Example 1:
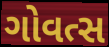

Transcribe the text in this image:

ગોવત્સ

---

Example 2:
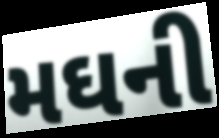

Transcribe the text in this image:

મઘની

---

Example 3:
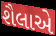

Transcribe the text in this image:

શૈલાએ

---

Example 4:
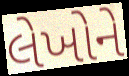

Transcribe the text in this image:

લેખોને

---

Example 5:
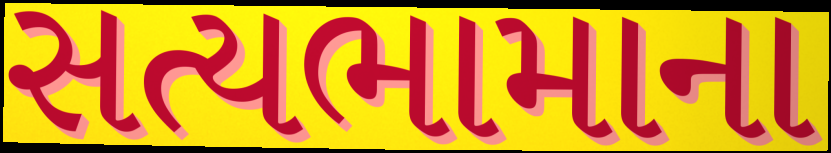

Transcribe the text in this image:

સત્યભામાના